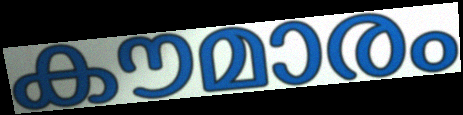
കൗമാരം